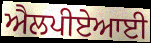
ਐਲਪੀਏਆਈ